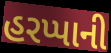
હરપ્પાની